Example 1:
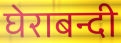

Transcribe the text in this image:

घेराबन्दी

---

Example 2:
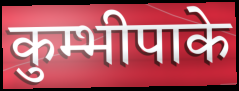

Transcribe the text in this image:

कुम्भीपाके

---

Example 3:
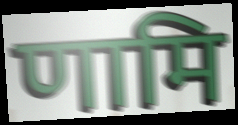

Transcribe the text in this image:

णामि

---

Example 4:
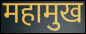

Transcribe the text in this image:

महामुख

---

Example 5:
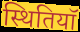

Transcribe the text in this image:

स्थितियॉ